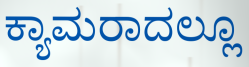
ಕ್ಯಾಮರಾದಲ್ಲೂ